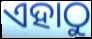
ଏହାଠୁ